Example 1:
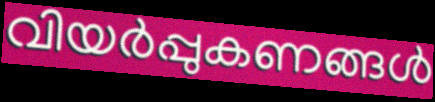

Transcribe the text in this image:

വിയർപ്പുകണങ്ങൾ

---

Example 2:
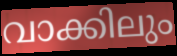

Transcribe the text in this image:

വാക്കിലും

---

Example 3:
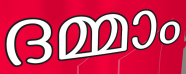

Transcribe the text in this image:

ദമ്മാം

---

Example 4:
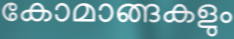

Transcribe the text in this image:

കോമാങ്ങകളും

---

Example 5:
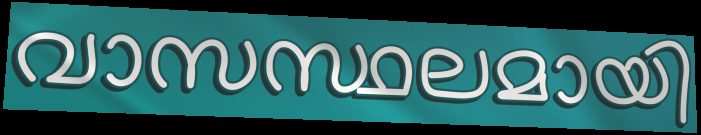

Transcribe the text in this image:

വാസസ്ഥലമായി